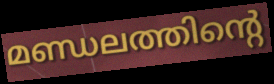
മണ്ഡലത്തിന്റെ